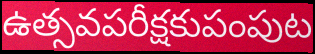
ఉత్సవపరీక్షకుపంపుట